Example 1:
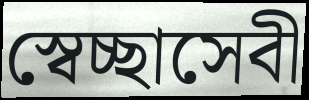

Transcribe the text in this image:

স্বেচ্ছাসেবী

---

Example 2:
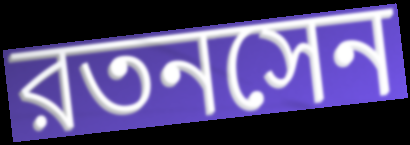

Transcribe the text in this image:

রতনসেন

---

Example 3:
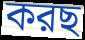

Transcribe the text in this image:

করছ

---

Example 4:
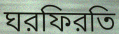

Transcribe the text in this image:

ঘরফিরতি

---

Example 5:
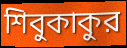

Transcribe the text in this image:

শিবুকাকুর